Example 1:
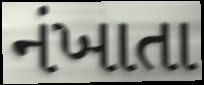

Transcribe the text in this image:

નંખાતા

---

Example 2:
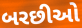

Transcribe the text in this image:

બરછીઓ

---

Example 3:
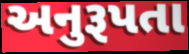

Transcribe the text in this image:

અનુરૂપતા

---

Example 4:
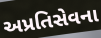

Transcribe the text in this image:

અપ્રતિસેવના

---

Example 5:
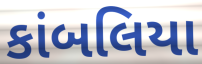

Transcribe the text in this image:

કાંબલિયા